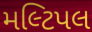
મલ્ટિપલ